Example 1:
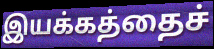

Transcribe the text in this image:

இயக்கத்தைச்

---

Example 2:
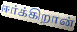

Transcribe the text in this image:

ஈர்க்கிறான்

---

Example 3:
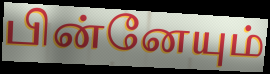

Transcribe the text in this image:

பின்னேயும்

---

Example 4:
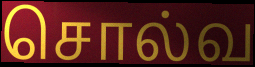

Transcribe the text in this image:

சொல்வ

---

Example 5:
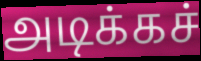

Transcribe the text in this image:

அடிக்கச்